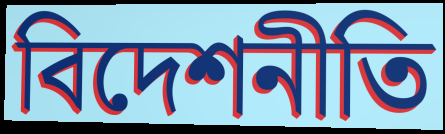
বিদেশনীতি